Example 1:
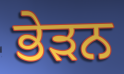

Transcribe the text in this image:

ਭੇੜਨ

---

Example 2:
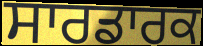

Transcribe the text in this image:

ਸਾਰਡਾਰਕ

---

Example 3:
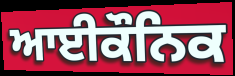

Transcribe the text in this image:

ਆਈਕੌਨਿਕ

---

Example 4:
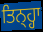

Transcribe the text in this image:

ਤਿਨ੍ਹ੍ਹਾ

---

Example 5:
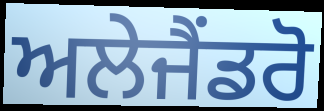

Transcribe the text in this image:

ਅਲੇਜੈਂਡਰੋ